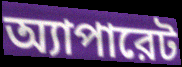
অ্যাপারেট